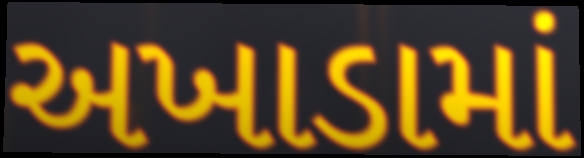
અખાડામાં